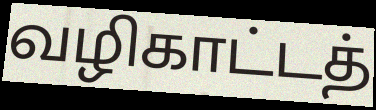
வழிகாட்டத்